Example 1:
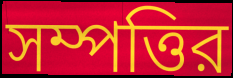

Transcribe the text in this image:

সম্পত্তির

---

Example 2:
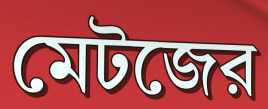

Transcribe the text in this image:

মেটজের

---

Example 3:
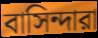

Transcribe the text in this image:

বাসিন্দারা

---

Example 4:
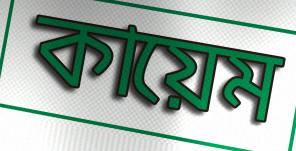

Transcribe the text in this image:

কায়েম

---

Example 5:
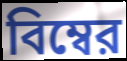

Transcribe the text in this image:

বিম্বের